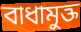
বাধামুক্ত